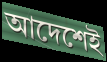
আদেশেই